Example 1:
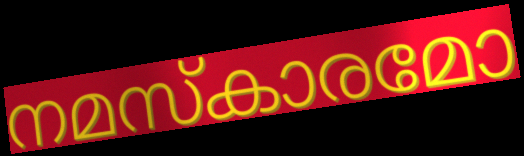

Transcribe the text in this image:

നമസ്കാരമോ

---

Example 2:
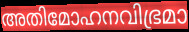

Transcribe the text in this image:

അതിമോഹനവിഭ്രമാ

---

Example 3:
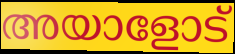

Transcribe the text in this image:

അയാളോട്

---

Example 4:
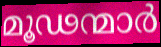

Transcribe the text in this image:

മൂഢന്മാർ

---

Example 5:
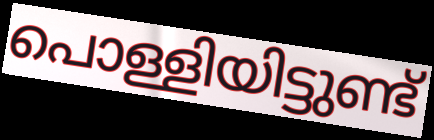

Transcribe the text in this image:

പൊള്ളിയിട്ടുണ്ട്